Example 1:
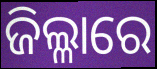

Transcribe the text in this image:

ଜିଲ୍ଳାରେ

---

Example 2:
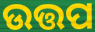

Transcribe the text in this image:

ଉତ୍ତପ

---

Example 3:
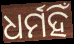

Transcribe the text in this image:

ଧର୍ମହିଁ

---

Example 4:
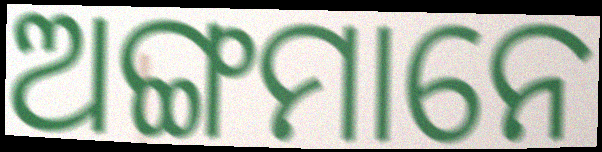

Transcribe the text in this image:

ଅଙ୍ଗମାନେ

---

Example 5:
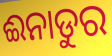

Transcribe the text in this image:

ଈନାଡୁର